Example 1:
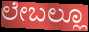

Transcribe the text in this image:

ಲೇಬಲ್ಲೂ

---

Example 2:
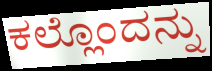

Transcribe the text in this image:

ಕಲ್ಲೊಂದನ್ನು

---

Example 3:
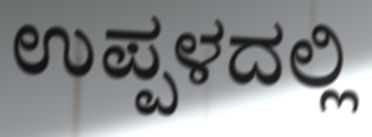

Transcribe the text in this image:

ಉಪ್ಪಳದಲ್ಲಿ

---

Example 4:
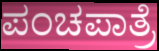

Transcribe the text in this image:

ಪಂಚಪಾತ್ರೆ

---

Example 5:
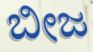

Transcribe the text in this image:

ಬೀಜ